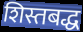
शिस्तबद्ध